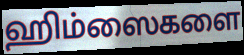
ஹிம்ஸைகளை